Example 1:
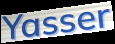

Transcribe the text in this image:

Yasser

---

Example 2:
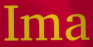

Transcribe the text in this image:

Ima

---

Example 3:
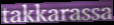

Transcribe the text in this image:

takkarassa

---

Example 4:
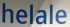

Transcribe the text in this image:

helale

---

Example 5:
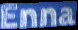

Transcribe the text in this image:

Enna